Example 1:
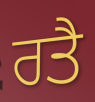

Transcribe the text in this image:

ਰਤੈ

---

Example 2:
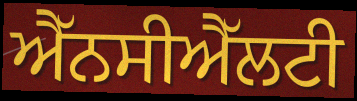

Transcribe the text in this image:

ਐੱਨਸੀਐੱਲਟੀ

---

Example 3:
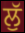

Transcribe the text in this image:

ਲੁੱ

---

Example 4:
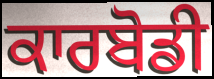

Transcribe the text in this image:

ਕਾਰਬੋਡੀ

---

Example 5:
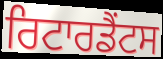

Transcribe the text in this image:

ਰਿਟਾਰਡੈਂਟਸ